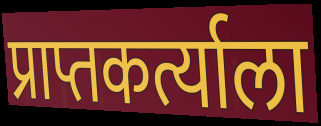
प्राप्तकर्त्याला